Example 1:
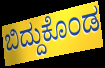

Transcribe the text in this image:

ಬಿದ್ದುಕೊಂಡ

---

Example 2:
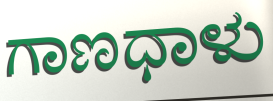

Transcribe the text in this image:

ಗಾಣಧಾಳು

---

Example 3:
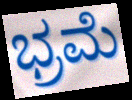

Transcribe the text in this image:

ಭ್ರಮೆ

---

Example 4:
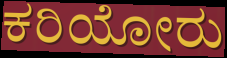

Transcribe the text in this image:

ಕರಿಯೋರು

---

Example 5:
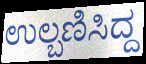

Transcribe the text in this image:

ಉಲ್ಬಣಿಸಿದ್ದ